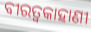
ବୀରତ୍ୱକାହାଣୀ